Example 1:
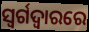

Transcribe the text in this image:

ସ୍ୱର୍ଗଦ୍ୱାରରେ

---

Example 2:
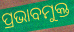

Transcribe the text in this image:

ପ୍ରଭାବମୁକ୍ତ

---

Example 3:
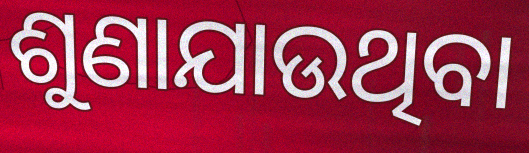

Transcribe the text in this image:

ଶୁଣାଯାଉଥିବା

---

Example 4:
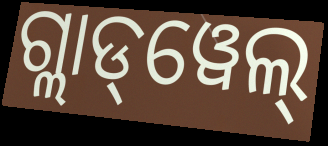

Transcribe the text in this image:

ଗ୍ଲାଡ୍‌ୱେଲ୍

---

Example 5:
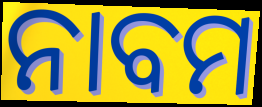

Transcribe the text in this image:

ନାବମ